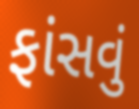
ફાંસવું